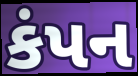
કંપન